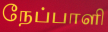
நேப்பாளி